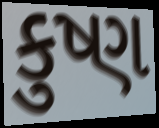
કુષ્ણ